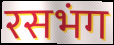
रसभंग